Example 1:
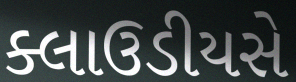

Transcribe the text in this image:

ક્લાઉડીયસે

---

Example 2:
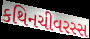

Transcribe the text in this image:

કથિનચીવરસ્સ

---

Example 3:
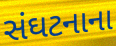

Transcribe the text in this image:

સંઘટનાના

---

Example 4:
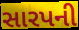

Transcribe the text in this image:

સારપની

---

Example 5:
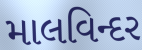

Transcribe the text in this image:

માલવિન્દર